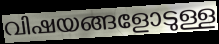
വിഷയങ്ങളോടുള്ള